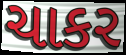
ચાકર